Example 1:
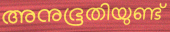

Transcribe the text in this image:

അനുഭൂതിയുണ്ട്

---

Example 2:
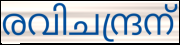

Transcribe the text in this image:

രവിചന്ദ്രന്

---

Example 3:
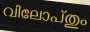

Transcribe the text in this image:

വിലോപ്തും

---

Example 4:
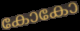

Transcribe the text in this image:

കോകോ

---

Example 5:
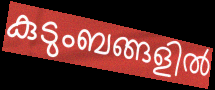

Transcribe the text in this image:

കുടുംബങ്ങളിൽ